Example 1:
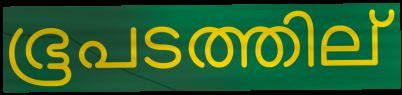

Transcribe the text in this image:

ഭൂപടത്തില്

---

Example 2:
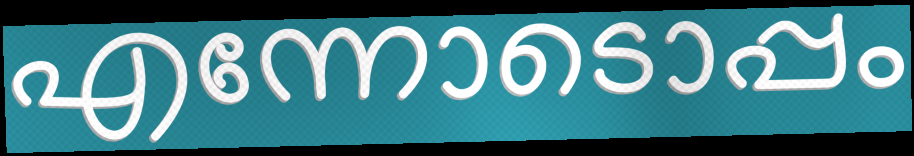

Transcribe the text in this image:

എന്നോടൊപ്പം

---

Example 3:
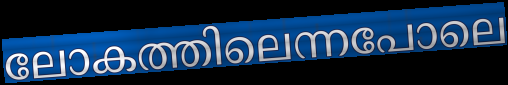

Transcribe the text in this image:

ലോകത്തിലെന്നപോലെ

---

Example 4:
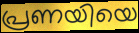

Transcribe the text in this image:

പ്രണയിയെ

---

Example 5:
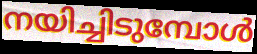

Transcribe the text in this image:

നയിച്ചിടുമ്പോൾ